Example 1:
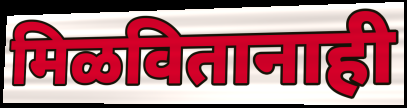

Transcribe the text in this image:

मिळवितानाही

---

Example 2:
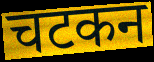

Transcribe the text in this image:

चटकन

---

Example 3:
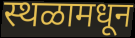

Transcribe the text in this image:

स्थळामधून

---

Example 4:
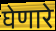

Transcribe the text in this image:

घेणारे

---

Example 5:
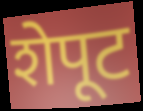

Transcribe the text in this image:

शेपूट